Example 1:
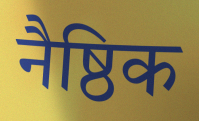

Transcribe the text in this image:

नैष्ठिक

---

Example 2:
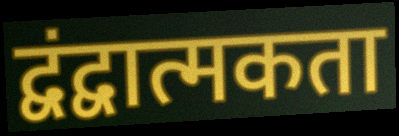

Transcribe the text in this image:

द्वंद्वात्मकता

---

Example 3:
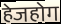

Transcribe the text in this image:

हेजहोग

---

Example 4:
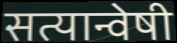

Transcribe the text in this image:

सत्यान्वेषी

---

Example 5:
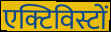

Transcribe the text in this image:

एक्टिविस्टों